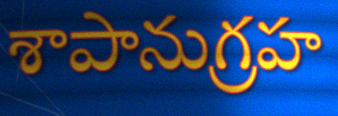
శాపానుగ్రహ